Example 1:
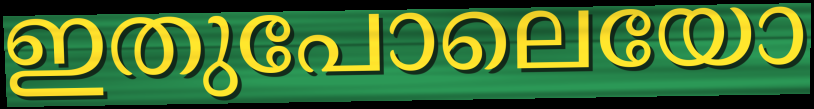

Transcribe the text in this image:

ഇതുപോലെയോ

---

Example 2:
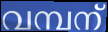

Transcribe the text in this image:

വമ്പന്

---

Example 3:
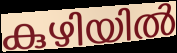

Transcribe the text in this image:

കുഴിയിൽ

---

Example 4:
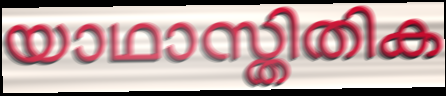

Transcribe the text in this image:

യാഥാസ്തിതിക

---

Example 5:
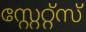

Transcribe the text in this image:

സ്റ്റേറ്റ്സ്